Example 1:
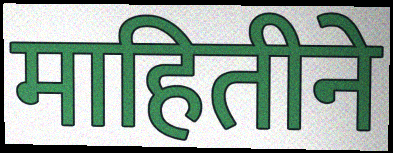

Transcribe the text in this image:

माहितीने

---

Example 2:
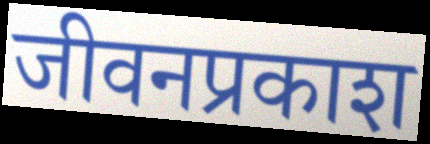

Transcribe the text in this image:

जीवनप्रकाश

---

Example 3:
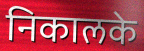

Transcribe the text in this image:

निकालके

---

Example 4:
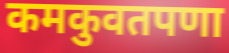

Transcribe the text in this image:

कमकुवतपणा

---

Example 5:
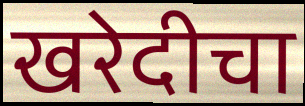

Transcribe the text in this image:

खरेदीचा